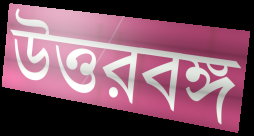
উত্তরবঙ্গ